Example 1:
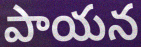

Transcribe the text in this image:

పాయన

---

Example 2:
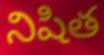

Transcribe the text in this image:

నిషిత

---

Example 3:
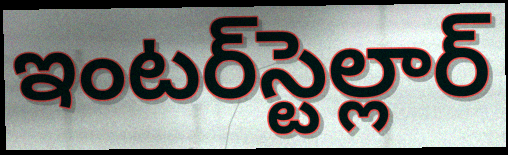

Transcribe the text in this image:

ఇంటర్‌స్టెల్లార్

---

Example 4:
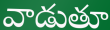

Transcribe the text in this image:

వాడుతూ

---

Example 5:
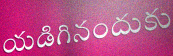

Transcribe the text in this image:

యడిగినందుకు